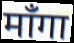
माँगा